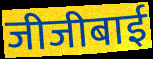
जीजीबाई